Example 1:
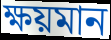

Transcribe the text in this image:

ক্ষয়মান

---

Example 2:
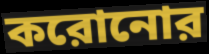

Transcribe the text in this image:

করোনোর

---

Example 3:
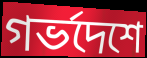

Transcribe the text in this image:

গর্ভদেশে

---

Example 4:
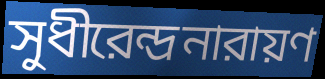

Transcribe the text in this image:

সুধীরেন্দ্রনারায়ণ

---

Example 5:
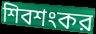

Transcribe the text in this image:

শিবশংকর